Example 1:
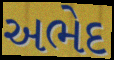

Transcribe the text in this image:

અભેદ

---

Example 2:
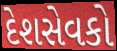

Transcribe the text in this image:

દેશસેવકો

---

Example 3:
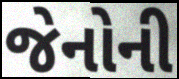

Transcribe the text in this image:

જેનોની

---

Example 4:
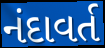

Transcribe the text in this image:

નંદાવર્ત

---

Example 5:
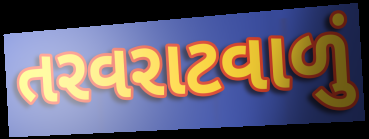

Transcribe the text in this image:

તરવરાટવાળું